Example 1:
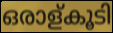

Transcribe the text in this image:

ഒരാള്കൂടി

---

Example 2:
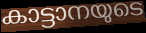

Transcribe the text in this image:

കാട്ടാനയുടെ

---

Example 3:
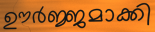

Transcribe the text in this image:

ഊർജ്ജമാക്കി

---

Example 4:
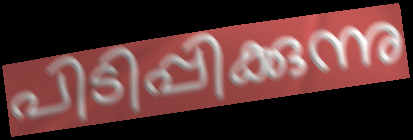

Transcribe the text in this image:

പിടിപ്പിക്കുന്നു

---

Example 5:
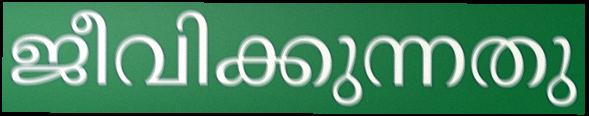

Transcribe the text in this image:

ജീവിക്കുന്നതു